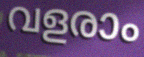
വളരാം